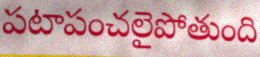
పటాపంచలైపోతుంది